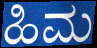
ಹಿಮ